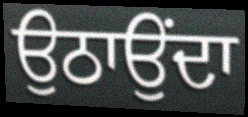
ਉਠਾਉਂਦਾ